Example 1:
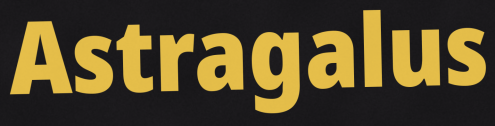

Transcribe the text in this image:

Astragalus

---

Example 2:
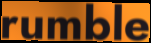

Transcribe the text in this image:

rumble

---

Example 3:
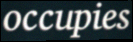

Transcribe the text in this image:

occupies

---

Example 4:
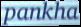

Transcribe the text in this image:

pankha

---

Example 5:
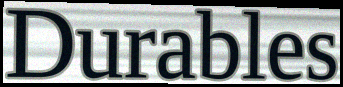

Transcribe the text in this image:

Durables